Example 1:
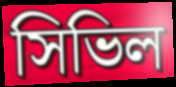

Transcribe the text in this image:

সিভিল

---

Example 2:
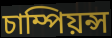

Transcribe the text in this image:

চাম্পিয়ন্স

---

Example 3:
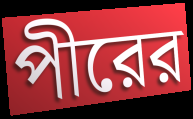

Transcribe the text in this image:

পীরের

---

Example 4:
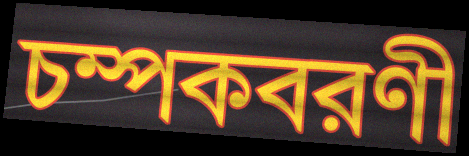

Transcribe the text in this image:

চম্পকবরণী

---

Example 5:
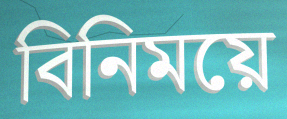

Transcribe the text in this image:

বিনিময়ে